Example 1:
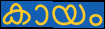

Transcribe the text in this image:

കായം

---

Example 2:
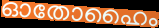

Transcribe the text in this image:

ഓതോഹൈം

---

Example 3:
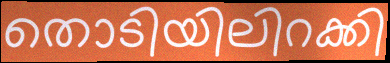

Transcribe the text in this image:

തൊടിയിലിറക്കി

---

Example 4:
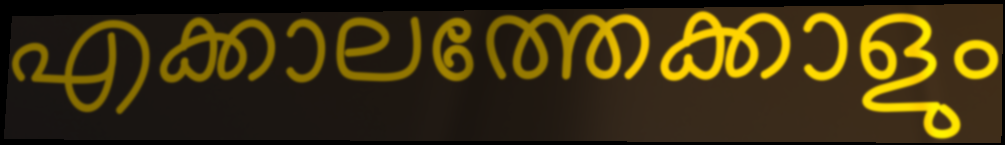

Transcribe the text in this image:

എക്കാലത്തേക്കാളും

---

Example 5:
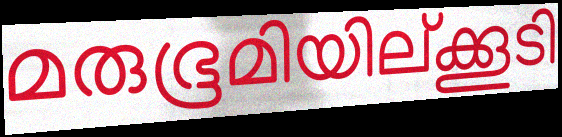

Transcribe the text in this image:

മരുഭൂമിയില്ക്കൂടി